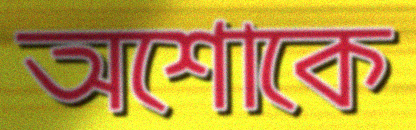
অশোকে